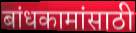
बांधकामांसाठी